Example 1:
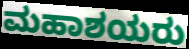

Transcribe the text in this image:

ಮಹಾಶಯರು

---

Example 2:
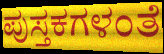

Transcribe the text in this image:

ಪುಸ್ತಕಗಳಂತೆ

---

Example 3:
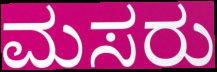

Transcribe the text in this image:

ಮಸರು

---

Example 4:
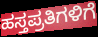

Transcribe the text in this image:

ಹಸ್ತಪ್ರತಿಗಳಿಗೆ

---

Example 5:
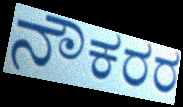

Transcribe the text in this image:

ನೌಕರರ